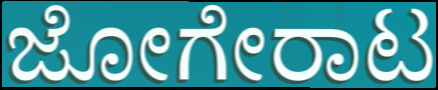
ಜೋಗೇರಾಟ